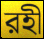
রহী